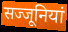
सज्जूनियां